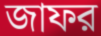
জাফর